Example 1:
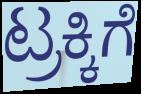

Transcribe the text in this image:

ಟ್ರಕ್ಕಿಗೆ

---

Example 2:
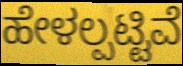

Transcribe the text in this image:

ಹೇಳಲ್ಪಟ್ಟಿವೆ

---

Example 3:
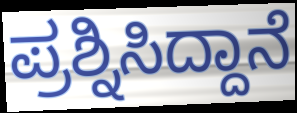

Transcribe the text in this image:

ಪ್ರಶ್ನಿಸಿದ್ದಾನೆ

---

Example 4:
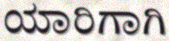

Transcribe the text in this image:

ಯಾರಿಗಾಗಿ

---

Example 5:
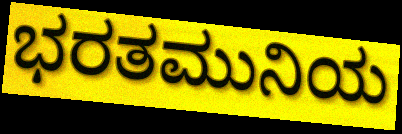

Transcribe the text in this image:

ಭರತಮುನಿಯ